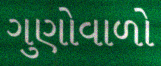
ગુણોવાળો